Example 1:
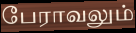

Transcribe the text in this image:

பேராவலும்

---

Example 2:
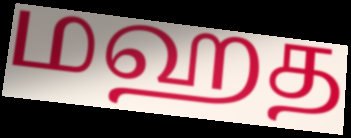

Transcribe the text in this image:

மஹத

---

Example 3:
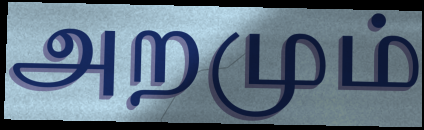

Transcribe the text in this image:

அறமும்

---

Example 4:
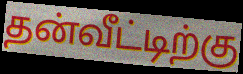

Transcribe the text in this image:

தன்வீட்டிற்கு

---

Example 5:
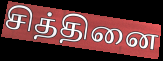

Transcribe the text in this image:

சித்தினை